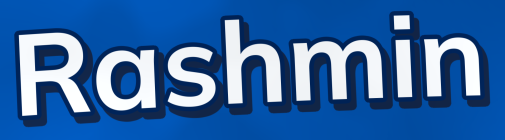
Rashmin